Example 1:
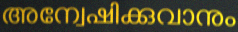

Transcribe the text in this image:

അന്വേഷിക്കുവാനും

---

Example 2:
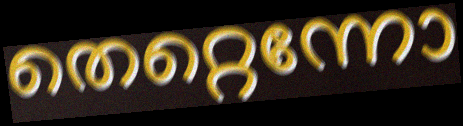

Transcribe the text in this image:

തെറ്റെന്നോ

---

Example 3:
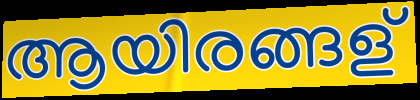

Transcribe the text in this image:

ആയിരങ്ങള്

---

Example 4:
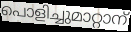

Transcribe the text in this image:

പൊളിച്ചുമാറ്റാന്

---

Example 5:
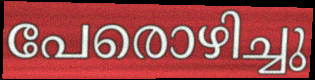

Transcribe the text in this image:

പേരൊഴിച്ചു